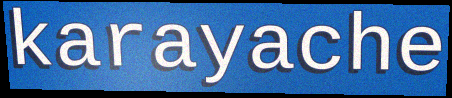
karayache